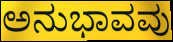
ಅನುಭಾವವು